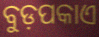
ବୁଡ଼ପକାଏ